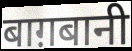
बाग़बानी